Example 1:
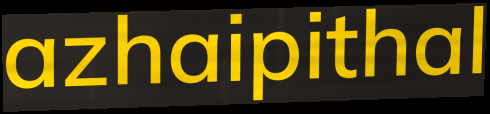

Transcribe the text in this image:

azhaipithal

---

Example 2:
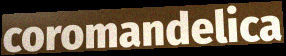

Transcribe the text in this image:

coromandelica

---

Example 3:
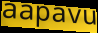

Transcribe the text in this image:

aapavu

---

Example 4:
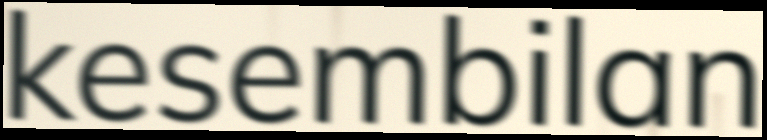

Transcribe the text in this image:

kesembilan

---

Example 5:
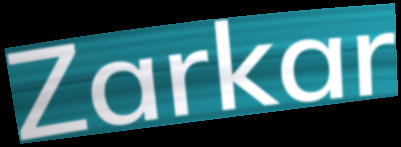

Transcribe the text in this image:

Zarkar